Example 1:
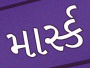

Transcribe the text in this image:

માર્સ્ક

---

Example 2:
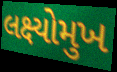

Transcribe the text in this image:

લક્ષ્યોમુખ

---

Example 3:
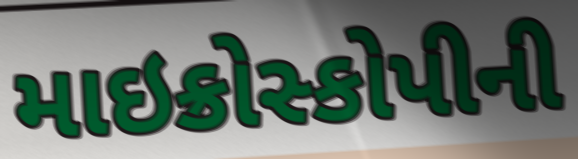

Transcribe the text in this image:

માઇક્રોસ્કોપીની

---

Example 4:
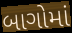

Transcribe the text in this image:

બાગોમાં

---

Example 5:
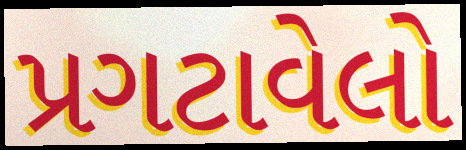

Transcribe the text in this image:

પ્રગટાવેલો